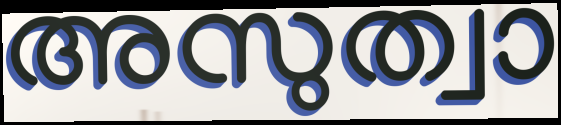
അസുത്വാ